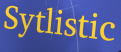
Sytlistic